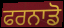
ਫਰਨਾਡੋ